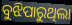
ବୁଝିପାରୁଥିଲା